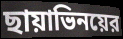
ছায়াভিনয়ের